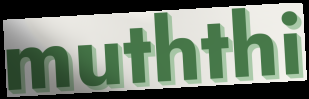
muththi